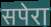
सपेरा